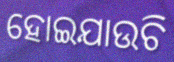
ହୋଇଯାଉଚି